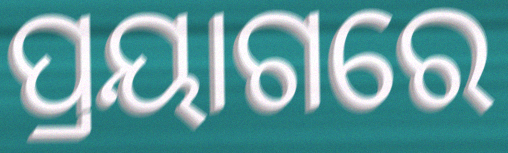
ପ୍ରୟାଗରେ